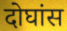
दोघांस